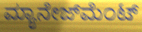
ಮ್ಯಾನೇಜ್‍ಮೆಂಟ್